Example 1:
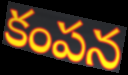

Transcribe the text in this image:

కంపన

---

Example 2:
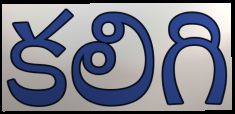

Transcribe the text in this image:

కలిగి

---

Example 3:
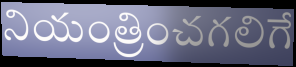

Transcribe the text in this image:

నియంత్రించగలిగే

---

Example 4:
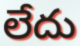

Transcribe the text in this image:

లేదు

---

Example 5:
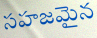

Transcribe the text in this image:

సహజమైన